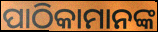
ପାଠିକାମାନଙ୍କ